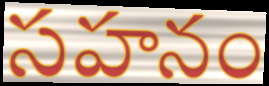
సహనం